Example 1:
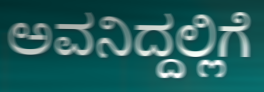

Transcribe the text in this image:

ಅವನಿದ್ದಲ್ಲಿಗೆ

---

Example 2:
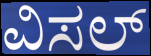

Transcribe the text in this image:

ವಿಸಲ್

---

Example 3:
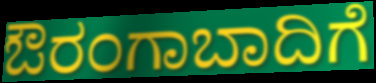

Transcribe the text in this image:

ಔರಂಗಾಬಾದಿಗೆ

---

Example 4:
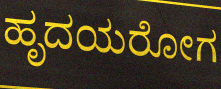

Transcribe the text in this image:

ಹೃದಯರೋಗ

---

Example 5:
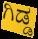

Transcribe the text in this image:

ಗಿಡ್ಡ